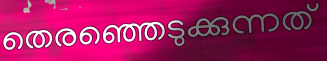
തെരഞ്ഞെടുക്കുന്നത്